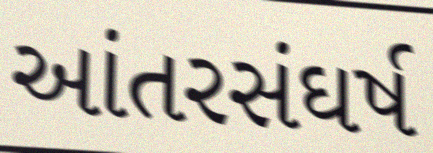
આંતરસંઘર્ષ